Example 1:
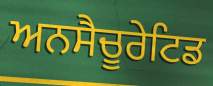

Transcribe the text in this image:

ਅਨਸੈਚੂਰੇਟਿਡ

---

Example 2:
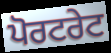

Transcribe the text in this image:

ਪੋਰਟਰੇਟ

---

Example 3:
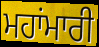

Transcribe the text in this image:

ਮਹਾਂਮਾਰੀ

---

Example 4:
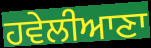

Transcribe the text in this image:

ਹਵੇਲੀਆਣਾ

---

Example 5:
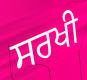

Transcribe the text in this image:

ਸਰਖੀ